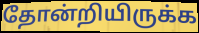
தோன்றியிருக்க